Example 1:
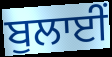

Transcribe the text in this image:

ਬੁਲਾਈਂ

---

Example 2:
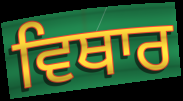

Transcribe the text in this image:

ਵਿਥਾਰ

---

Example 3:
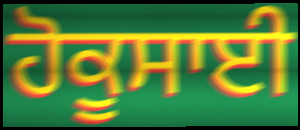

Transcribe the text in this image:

ਹੋਕੂਸਾਈ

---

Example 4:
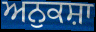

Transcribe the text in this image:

ਅਨੁਕਸ਼ਾ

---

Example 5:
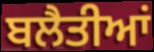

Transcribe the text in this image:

ਬਲੈਤੀਆਂ